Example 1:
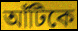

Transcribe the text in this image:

আঁটিকে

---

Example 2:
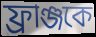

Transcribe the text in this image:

ফ্রাঞ্জকে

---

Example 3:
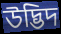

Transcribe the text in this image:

উদ্ভিদ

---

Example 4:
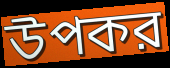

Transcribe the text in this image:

উপকর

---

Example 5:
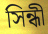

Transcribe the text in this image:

সিন্ধী